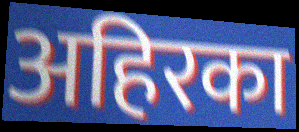
अहिरका